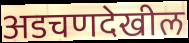
अडचणदेखील